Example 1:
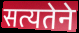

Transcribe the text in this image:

सत्यतेने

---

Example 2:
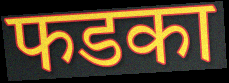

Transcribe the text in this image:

फडका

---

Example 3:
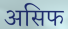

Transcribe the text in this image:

असिफ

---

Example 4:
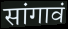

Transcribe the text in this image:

सांगावं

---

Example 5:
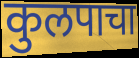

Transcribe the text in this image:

कुलपाचा